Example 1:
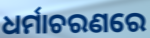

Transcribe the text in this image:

ଧର୍ମାଚରଣରେ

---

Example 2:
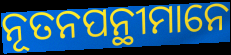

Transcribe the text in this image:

ନୂତନପନ୍ଥୀମାନେ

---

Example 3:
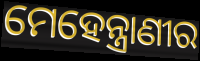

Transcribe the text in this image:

ମେହେନ୍ତ୍ରାଣୀର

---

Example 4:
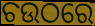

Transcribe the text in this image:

ଚଉଠରେ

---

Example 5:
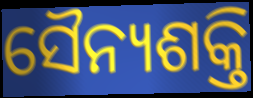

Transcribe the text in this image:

ସୈନ୍ୟଶକ୍ତି